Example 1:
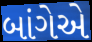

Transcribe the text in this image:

બાંગેએ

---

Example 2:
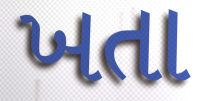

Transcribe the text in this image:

ખતા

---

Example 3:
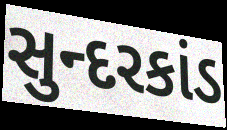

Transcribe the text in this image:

સુન્દરકાંડ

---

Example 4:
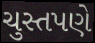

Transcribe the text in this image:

ચુસ્તપણે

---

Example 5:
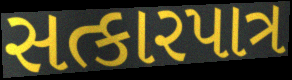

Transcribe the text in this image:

સત્કારપાત્ર